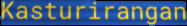
Kasturirangan